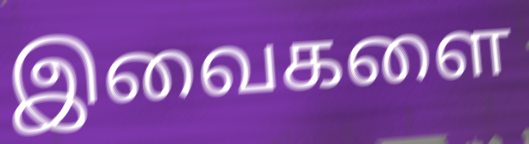
இவைகளை